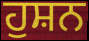
ਹੁਸ਼ਨ